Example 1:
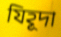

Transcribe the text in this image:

যিহূদা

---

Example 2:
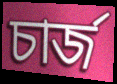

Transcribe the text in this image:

চার্জ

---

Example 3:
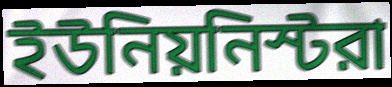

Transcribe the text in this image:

ইউনিয়নিস্টরা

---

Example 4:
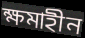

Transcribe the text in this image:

ক্ষমাহীন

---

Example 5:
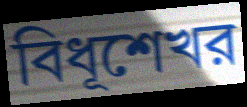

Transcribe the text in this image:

বিধূশেখর